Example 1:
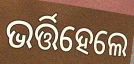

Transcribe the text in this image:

ଭର୍ତ୍ତିହେଲେ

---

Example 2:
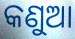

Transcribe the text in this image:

କଣୁଆ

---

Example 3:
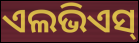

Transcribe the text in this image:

ଏଲଭିଏସ୍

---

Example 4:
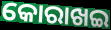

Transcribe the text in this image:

କୋରାଖଇ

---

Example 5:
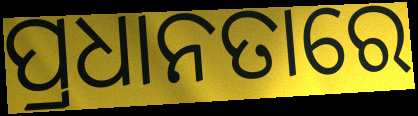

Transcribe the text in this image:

ପ୍ରଧାନତାରେ